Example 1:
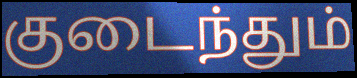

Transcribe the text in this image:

குடைந்தும்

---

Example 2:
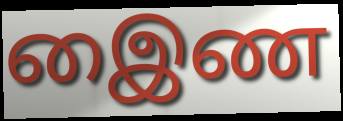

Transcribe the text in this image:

இைண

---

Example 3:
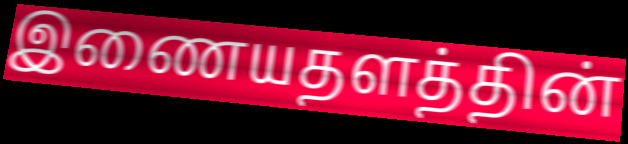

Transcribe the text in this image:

இணையதளத்தின்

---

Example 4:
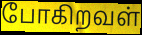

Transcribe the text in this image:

போகிறவள்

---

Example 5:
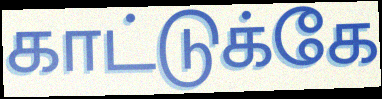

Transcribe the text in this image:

காட்டுக்கே